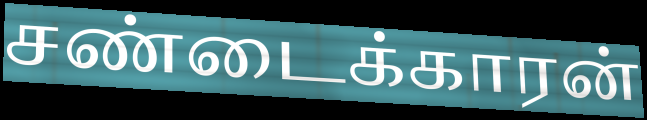
சண்டைக்காரன்